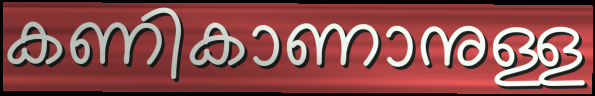
കണികാണാനുള്ള